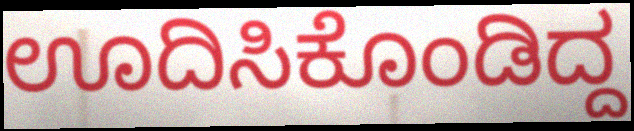
ಊದಿಸಿಕೊಂಡಿದ್ದ